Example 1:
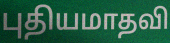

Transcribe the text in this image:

புதியமாதவி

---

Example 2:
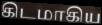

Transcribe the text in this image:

கிடமாகிய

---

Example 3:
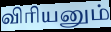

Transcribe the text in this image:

விரியனும்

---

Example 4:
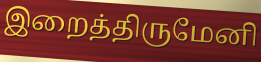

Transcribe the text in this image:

இறைத்திருமேனி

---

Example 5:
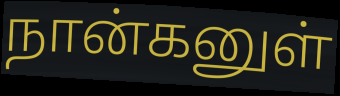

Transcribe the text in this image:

நான்கனுள்